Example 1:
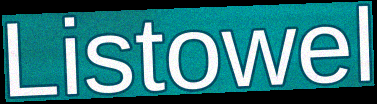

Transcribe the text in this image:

Listowel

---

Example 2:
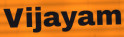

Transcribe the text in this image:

Vijayam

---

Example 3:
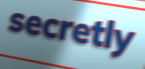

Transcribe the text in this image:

secretly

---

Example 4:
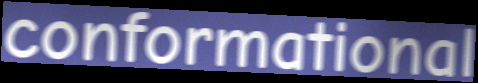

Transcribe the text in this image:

conformational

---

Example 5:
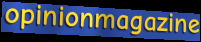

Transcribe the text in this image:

opinionmagazine